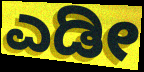
ಎಡೀ